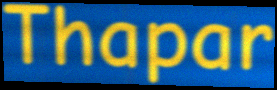
Thapar